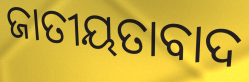
ଜାତୀୟତାବାଦ